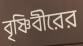
বৃষ্ণিবীরের